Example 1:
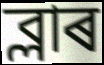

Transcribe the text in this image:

ব্লাৰ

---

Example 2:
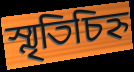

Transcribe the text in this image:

স্মৃতিচিহ্ন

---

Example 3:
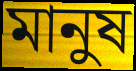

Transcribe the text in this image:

মানুষ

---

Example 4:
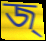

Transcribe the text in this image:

জ্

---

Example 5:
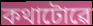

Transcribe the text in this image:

কথাটোৱে